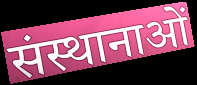
संस्थानाओं